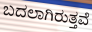
ಬದಲಾಗಿರುತ್ತವೆ